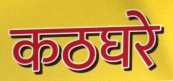
कठघरे